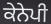
ਕੇਨੇਪੀ